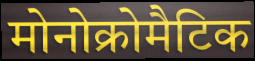
मोनोक्रोमैटिक